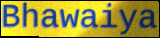
Bhawaiya